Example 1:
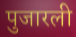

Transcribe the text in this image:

पुजारली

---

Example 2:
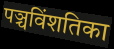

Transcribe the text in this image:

पञ्चविंशतिका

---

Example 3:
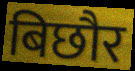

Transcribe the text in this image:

बिछौर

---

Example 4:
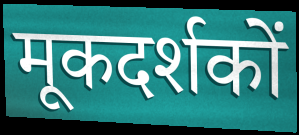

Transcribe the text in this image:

मूकदर्शकों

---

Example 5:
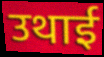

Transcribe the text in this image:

उथाई